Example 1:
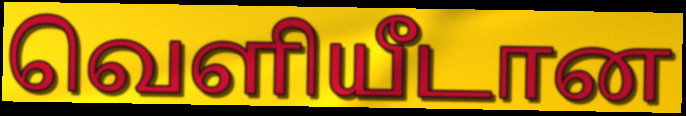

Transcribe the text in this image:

வெளியீடான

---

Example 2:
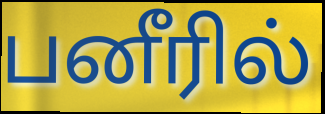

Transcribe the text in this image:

பனீரில்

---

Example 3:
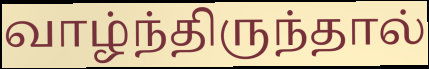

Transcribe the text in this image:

வாழ்ந்திருந்தால்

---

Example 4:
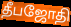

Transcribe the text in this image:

தீபஜோதி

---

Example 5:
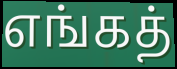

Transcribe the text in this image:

எங்கத்